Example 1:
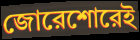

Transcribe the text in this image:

জোরেশোরেই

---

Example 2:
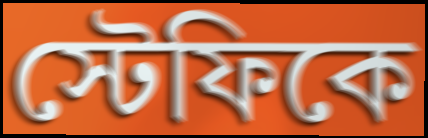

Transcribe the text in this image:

স্টেফিকে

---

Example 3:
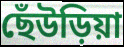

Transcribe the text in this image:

ছেঁউড়িয়া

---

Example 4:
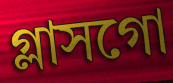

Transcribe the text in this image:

গ্লাসগো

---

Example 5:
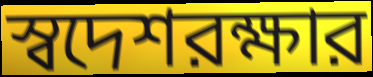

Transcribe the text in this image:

স্বদেশরক্ষার